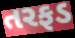
તરફડ